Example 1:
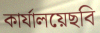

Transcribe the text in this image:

কার্যালয়েছবি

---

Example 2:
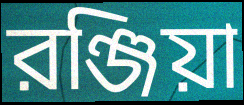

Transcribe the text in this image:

রঞ্জিয়া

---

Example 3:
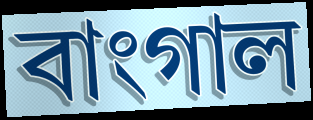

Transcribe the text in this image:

বাংগাল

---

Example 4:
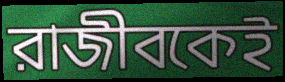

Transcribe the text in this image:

রাজীবকেই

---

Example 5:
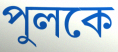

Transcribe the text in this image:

পুলকে